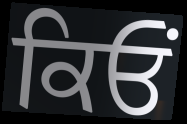
ਕਿਓਂ